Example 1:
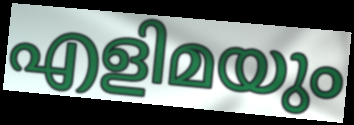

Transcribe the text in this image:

എളിമയും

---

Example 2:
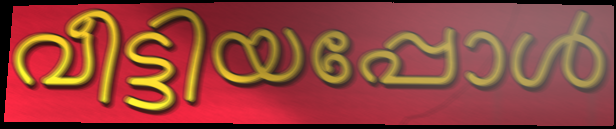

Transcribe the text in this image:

വീട്ടിയപ്പോൾ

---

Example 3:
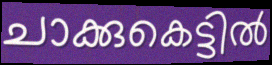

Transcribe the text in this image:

ചാക്കുകെട്ടിൽ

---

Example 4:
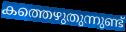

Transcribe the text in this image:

കത്തെഴുതുന്നുണ്ട്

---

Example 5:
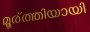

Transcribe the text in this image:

മൂര്ത്തിയായി